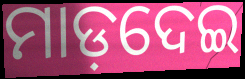
ମାଡ଼ଦେଇ